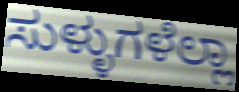
ಸುಳ್ಳುಗಳೆಲ್ಲಾ